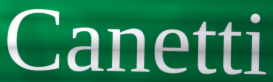
Canetti